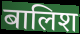
बालिश